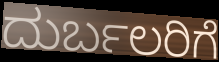
ದುರ್ಬಲರಿಗೆ